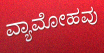
ವ್ಯಾಮೋಹವು